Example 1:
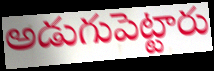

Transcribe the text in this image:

అడుగుపెట్టారు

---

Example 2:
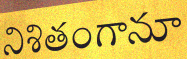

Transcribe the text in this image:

నిశితంగానూ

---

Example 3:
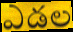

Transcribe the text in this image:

ఎడల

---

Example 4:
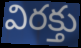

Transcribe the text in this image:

విరక్తు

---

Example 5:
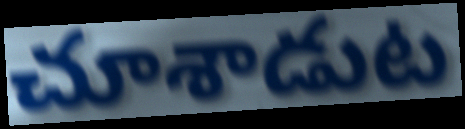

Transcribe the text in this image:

చూశాడుట